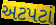
અટપટાં